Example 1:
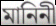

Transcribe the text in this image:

মানিনী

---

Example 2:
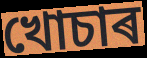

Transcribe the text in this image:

খোচাৰ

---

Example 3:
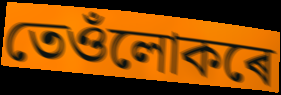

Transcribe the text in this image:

তেওঁলোকৰে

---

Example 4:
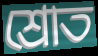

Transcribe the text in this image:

শ্ৰোত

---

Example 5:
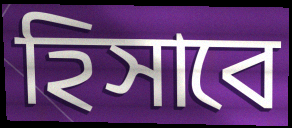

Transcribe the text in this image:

হিসাবে